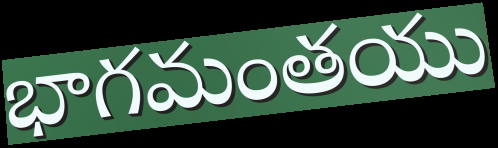
భాగమంతయు